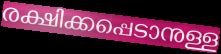
രക്ഷിക്കപ്പെടാനുള്ള